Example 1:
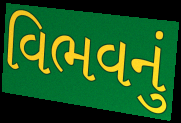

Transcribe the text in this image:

વિભવનું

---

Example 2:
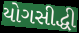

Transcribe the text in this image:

યોગસીદ્ધી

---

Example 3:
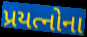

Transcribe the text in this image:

પ્રયત્નોના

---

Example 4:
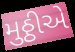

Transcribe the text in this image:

મુઠ્ઠીએ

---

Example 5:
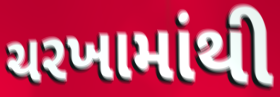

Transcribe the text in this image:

ચરખામાંથી